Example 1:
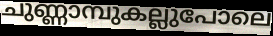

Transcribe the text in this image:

ചുണ്ണാമ്പുകല്ലുപോലെ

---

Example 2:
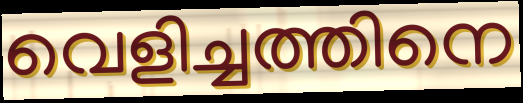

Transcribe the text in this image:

വെളിച്ചത്തിനെ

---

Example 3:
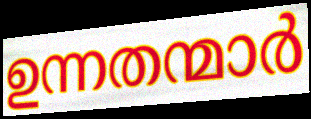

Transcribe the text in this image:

ഉന്നതന്മാർ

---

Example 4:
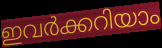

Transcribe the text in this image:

ഇവർക്കറിയാം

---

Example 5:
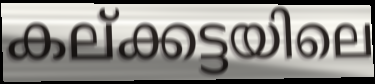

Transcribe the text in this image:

കല്ക്കട്ടയിലെ